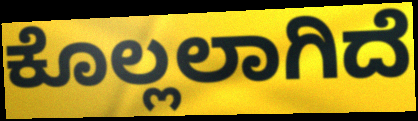
ಕೊಲ್ಲಲಾಗಿದೆ